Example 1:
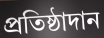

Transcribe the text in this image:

প্রতিষ্ঠাদান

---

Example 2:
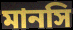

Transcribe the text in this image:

মানসি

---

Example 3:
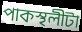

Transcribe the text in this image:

পাকস্থলীটা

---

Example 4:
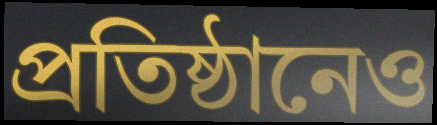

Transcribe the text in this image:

প্রতিষ্ঠানেও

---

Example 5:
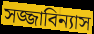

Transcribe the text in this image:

সজ্জাবিন্যাস